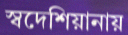
স্বদেশিয়ানায়